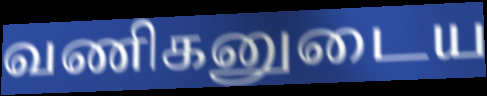
வணிகனுடைய